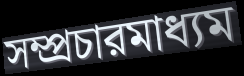
সম্প্রচারমাধ্যম